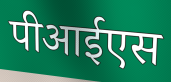
पीआईएस